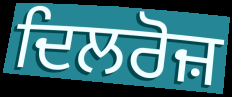
ਦਿਲਰੋਜ਼